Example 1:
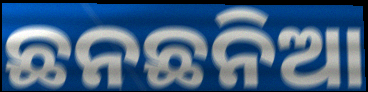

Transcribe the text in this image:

ଛନଛନିଆ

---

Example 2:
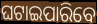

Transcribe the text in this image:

ଘଟାଇପାରିବେ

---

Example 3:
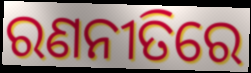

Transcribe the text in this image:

ରଣନୀତିରେ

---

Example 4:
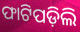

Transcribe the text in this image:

ଫାଟିପଡ଼ିଲି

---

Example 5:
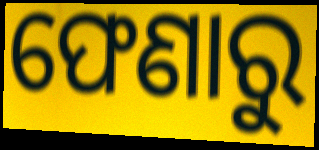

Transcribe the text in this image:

ଫେଣାରୁ